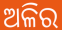
ଅଳିର